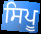
ਸਿਪੂ